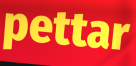
pettar